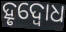
ହୃଦ୍ବୋଧ